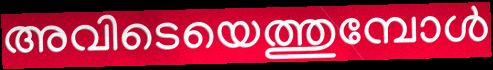
അവിടെയെത്തുമ്പോൾ